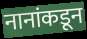
नानांकडून